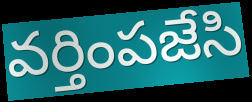
వర్తింపజేసి